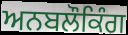
ਅਨਬਲੌਕਿੰਗ